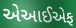
એઆઈએફ